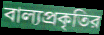
বাল্যপ্রকৃতির